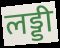
लड्डी